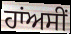
ਹਾਂਅਸੀਂ